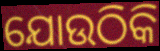
ଯୋଉଠିକି